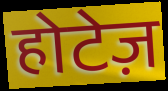
होटेज़